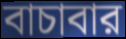
বাচাবার